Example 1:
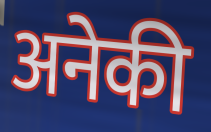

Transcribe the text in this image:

अनेकी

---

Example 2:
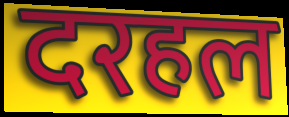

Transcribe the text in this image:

दरहल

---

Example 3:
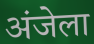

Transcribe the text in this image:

अंजेला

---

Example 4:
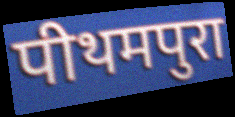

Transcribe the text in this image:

पीथमपुरा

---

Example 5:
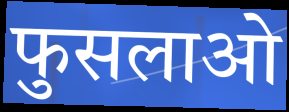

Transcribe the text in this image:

फुसलाओ